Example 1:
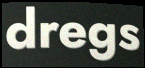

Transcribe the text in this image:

dregs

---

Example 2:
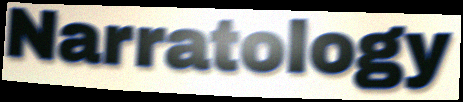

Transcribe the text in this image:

Narratology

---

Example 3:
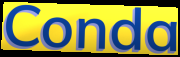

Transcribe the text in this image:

Conda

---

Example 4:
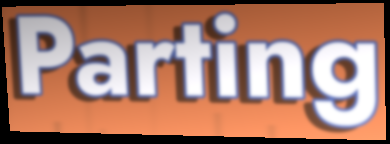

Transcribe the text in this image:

Parting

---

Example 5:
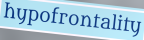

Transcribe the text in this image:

hypofrontality